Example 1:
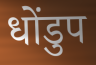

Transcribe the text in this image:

धोंडुप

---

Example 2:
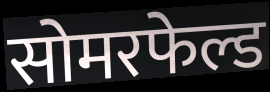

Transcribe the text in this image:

सोमरफेल्ड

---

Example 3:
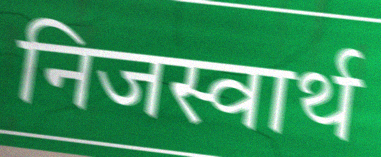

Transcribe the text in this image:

निजस्वार्थ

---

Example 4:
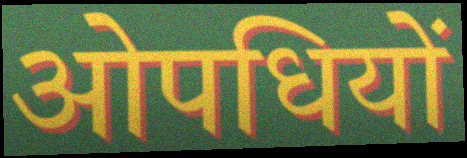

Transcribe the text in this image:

ओपधियों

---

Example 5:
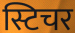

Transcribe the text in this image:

स्टिचर